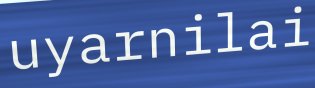
uyarnilai